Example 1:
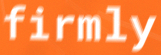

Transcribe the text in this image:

firmly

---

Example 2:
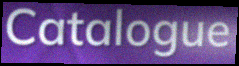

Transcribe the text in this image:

Catalogue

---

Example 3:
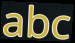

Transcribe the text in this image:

abc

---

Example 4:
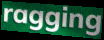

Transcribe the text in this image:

ragging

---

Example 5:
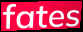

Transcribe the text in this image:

fates